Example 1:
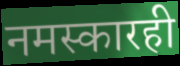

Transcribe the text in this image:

नमस्कारही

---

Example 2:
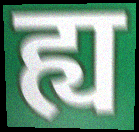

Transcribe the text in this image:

ह्य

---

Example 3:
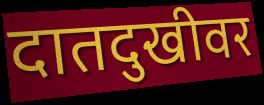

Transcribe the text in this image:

दातदुखीवर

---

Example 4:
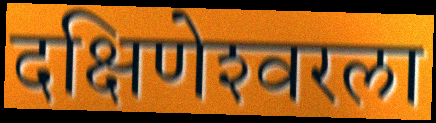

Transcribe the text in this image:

दक्षिणेश्वरला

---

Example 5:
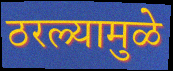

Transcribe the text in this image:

ठरल्यामुळे